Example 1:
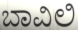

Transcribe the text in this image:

ಬಾವಿಲಿ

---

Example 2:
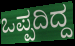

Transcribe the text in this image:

ಒಪ್ಪದಿದ್ದ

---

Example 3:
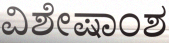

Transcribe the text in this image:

ವಿಶೇಷಾಂಶ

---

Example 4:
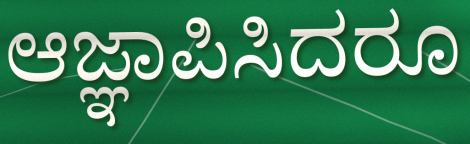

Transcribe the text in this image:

ಆಜ್ಞಾಪಿಸಿದರೂ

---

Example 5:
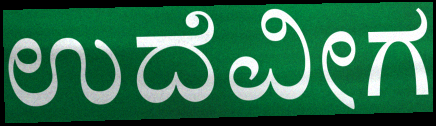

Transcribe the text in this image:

ಉದೆವೀಗ